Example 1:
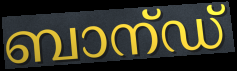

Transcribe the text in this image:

ബാന്ഡ്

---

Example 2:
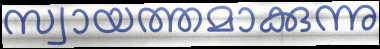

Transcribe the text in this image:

സ്വായത്തമാക്കുന്നു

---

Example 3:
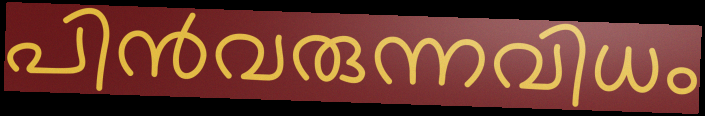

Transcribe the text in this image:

പിൻവരുന്നവിധം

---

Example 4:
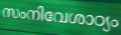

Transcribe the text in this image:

സംനിവേശാഠ്യം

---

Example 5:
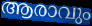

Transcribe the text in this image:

ആരാവും